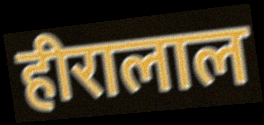
हीरालाल